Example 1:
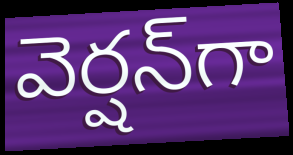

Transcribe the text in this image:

వెర్షన్‌గా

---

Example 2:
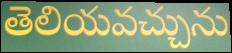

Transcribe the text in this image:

తెలియవచ్చును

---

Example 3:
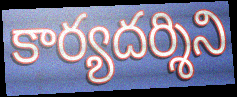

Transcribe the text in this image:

కార్యదర్శిని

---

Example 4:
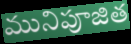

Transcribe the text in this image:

మునిపూజిత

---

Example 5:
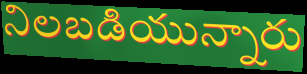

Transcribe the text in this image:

నిలబడియున్నారు